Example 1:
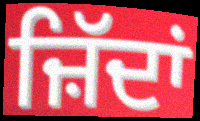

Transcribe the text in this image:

ਜ਼ਿੱਦਾਂ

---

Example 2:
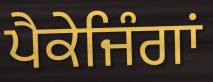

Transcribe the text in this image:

ਪੈਕੇਜਿੰਗਾਂ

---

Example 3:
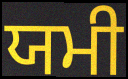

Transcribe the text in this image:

ਯਮੀ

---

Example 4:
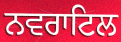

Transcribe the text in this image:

ਨਵਰਾਟਿਲ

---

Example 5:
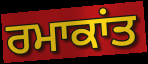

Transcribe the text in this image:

ਰਮਾਕਾਂਤ